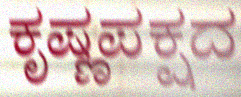
ಕೃಷ್ಣಪಕ್ಷದ